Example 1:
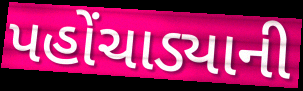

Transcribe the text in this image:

પહોંચાડ્યાની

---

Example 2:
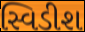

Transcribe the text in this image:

સ્વિડીશ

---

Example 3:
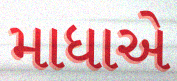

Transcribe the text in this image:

માધાએ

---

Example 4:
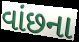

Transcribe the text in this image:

વાંછના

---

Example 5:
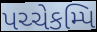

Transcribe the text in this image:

પચ્ચેકમ્પિ